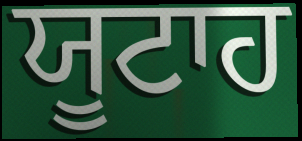
ਯੂਟਾਹ